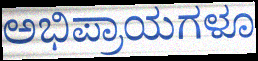
ಅಭಿಪ್ರಾಯಗಳೂ